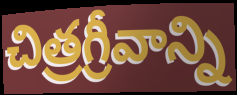
చిత్రగ్రీవాన్ని